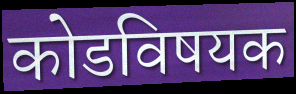
कोडविषयक